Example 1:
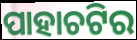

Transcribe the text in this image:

ପାହାଚଟିର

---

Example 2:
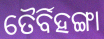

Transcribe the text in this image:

ତୈର୍ବିହଙ୍ଗା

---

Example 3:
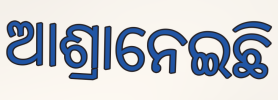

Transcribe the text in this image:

ଆଶ୍ରାନେଇଛି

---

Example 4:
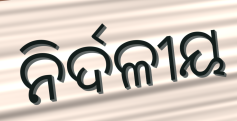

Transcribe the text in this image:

ନିର୍ଦଳୀୟ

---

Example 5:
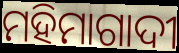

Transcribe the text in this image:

ମହିମାଗାଦୀ